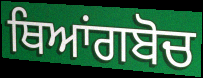
ਥਿਆਂਗਬੋਚ